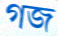
গজ